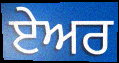
ਏਅਰ